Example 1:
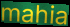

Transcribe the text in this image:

mahia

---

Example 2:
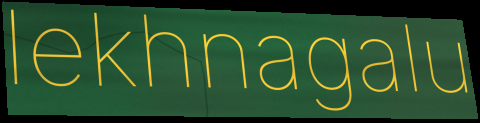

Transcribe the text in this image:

lekhnagalu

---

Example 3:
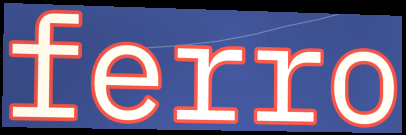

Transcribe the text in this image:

ferro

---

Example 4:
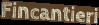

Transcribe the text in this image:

Fincantieri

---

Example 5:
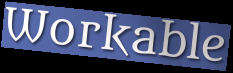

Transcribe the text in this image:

Workable